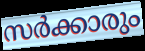
സർക്കാരും